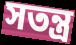
সতন্ত্র